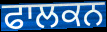
ਫਾਲਕਨ